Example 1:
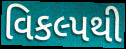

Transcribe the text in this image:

વિકલ્પથી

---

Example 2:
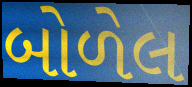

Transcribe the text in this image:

બોળેલ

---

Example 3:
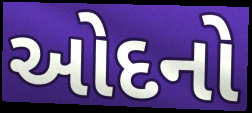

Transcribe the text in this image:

ઓદનો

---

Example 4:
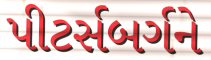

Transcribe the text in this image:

પીટર્સબર્ગને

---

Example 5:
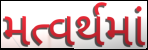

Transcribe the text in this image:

મત્વર્થમાં